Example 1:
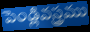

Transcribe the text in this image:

పెండ్లివస్త్రము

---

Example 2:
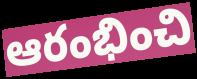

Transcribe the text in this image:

ఆరంభించి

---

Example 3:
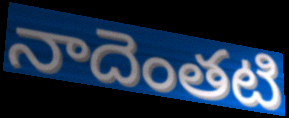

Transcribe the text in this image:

నాదెంతటి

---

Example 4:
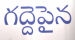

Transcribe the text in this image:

గద్దెపైన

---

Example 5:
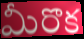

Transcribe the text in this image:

మీరొక